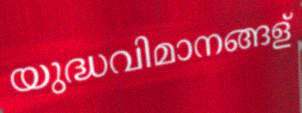
യുദ്ധവിമാനങ്ങള്